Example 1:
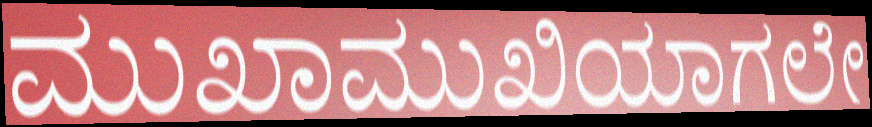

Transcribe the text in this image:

ಮುಖಾಮುಖಿಯಾಗಲೇ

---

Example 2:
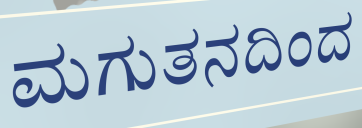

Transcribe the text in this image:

ಮಗುತನದಿಂದ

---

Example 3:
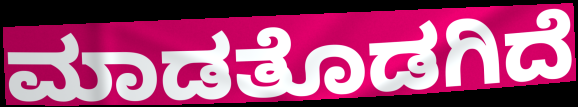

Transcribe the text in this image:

ಮಾಡತೊಡಗಿದೆ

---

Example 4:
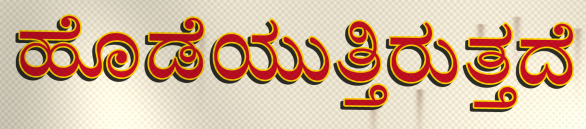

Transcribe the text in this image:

ಹೊಡೆಯುತ್ತಿರುತ್ತದೆ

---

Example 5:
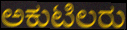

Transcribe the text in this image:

ಅಕುಟಿಲರು